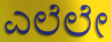
ಎಲೆಲೇ